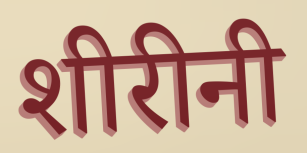
शीरीनी